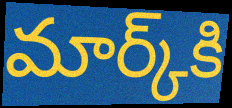
మార్క్‌కి